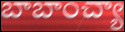
బాబాంచ్యా